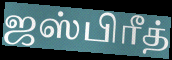
ஜஸ்பிரீத்